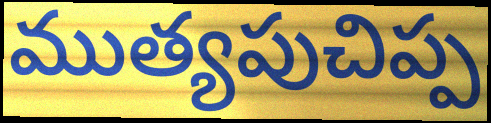
ముత్యపుచిప్ప